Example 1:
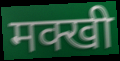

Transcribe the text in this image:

मक्खी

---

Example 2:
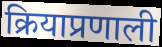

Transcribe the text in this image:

क्रियाप्रणाली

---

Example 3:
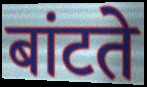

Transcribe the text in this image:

बांटते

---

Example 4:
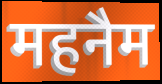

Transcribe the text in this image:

महनैम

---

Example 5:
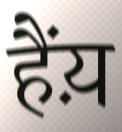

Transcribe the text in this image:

हैंय़